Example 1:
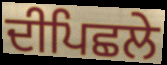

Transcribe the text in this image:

ਦੀਪਿਛਲੇ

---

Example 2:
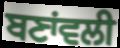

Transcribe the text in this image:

ਬਣਾਂਵਲੀ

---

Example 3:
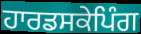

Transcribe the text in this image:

ਹਾਰਡਸਕੇਪਿੰਗ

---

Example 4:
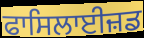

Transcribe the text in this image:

ਫਾਸਿਲਾਈਜ਼ਡ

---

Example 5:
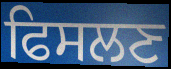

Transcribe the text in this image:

ਫਿਸਲਣ